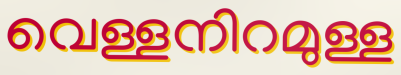
വെള്ളനിറമുള്ള